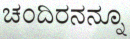
ಚಂದಿರನನ್ನೂ